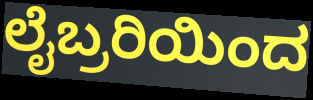
ಲೈಬ್ರರಿಯಿಂದ